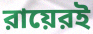
রায়েরই